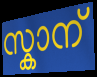
സ്കാന്